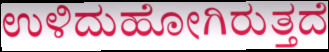
ಉಳಿದುಹೋಗಿರುತ್ತದೆ